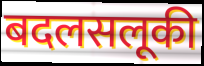
बदलसलूकी